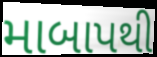
માબાપથી